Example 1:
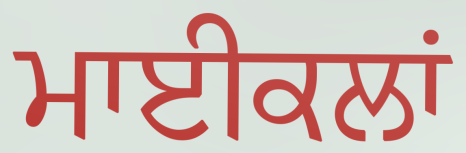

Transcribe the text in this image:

ਮਾਈਕਲਾਂ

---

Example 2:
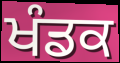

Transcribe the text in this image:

ਖੰਡਕ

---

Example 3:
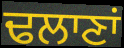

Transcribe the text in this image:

ਢਲਾਣਾਂ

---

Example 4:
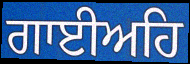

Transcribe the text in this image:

ਗਾਈਅਹਿ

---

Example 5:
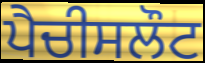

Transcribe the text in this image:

ਪੈਚੀਸਲੌਟ